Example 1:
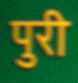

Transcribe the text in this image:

पुरी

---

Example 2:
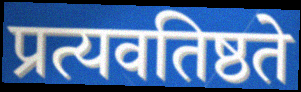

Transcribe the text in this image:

प्रत्यवतिष्ठते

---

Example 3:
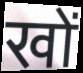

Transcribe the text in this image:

खों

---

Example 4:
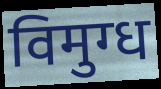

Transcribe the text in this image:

विमुग्ध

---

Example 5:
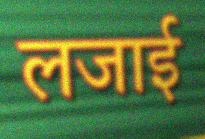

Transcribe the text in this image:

लजाई